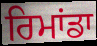
ਰਿਮਾਂਡਾ